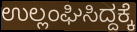
ಉಲ್ಲಂಘಿಸಿದ್ದಕ್ಕೆ